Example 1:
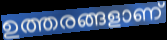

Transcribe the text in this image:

ഉത്തരങ്ങളാണ്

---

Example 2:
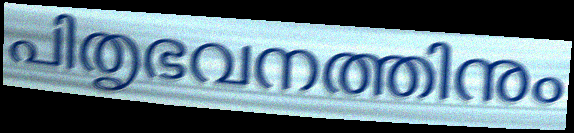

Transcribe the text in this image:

പിതൃഭവനത്തിനും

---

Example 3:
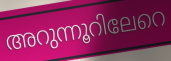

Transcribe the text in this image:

അറുന്നൂറിലേറെ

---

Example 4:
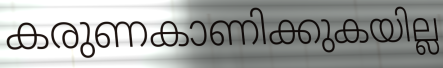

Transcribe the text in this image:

കരുണകാണിക്കുകയില്ല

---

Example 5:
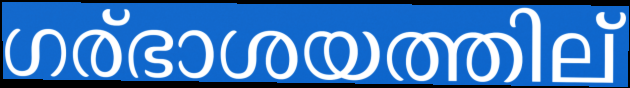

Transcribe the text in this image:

ഗര്ഭാശയത്തില്